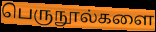
பெருநூல்களை